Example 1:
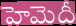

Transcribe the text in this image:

హెమెదీ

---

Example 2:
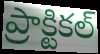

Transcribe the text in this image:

ప్రాక్టికల్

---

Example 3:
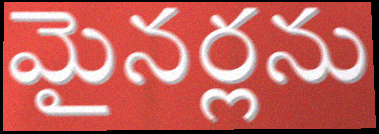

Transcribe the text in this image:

మైనర్లను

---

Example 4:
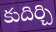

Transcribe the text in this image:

కుదిర్చి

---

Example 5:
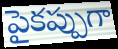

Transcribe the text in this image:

పైకప్పుగా